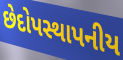
છેદોપસ્થાપનીય